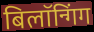
बिलॉन्गिंग